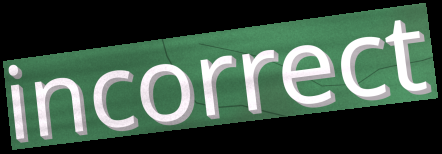
incorrect